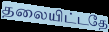
தலையிட்டதே